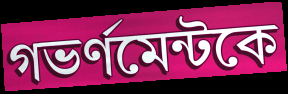
গভর্ণমেন্টকে